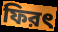
ফিরৎ